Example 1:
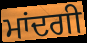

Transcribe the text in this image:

ਮਾਂਦਗੀ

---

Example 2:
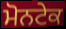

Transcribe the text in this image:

ਮੋਨਟੇਕ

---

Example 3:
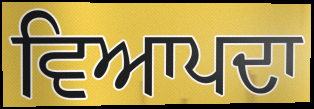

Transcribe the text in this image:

ਵਿਆਪਦਾ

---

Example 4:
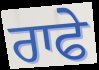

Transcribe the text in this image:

ਰਾਫੇ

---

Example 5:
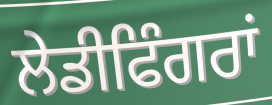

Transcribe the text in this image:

ਲੇਡੀਫਿੰਗਰਾਂ